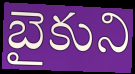
బైకుని